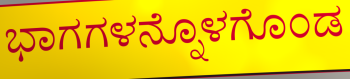
ಭಾಗಗಳನ್ನೊಳಗೊಂಡ